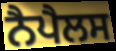
ਨੈਪੈਲਸ